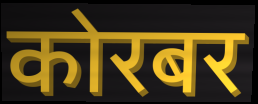
कोरबर